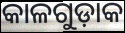
କାଳଗୁଡ଼ାକ